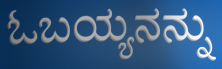
ಓಬಯ್ಯನನ್ನು